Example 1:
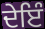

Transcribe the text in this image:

ਦੇਇੰ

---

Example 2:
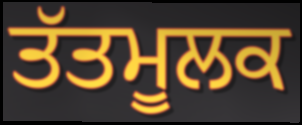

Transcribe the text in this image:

ਤੱਤਮੂਲਕ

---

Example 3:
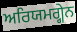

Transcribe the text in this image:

ਅਰਿਯਮਗ੍ਗੇਨ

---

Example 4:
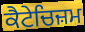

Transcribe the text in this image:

ਕੈਟੇਚਿਜ਼ਮ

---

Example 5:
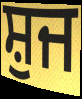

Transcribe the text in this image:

ਸ਼ੁਜ